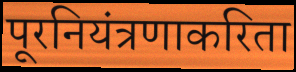
पूरनियंत्रणाकरिता